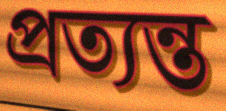
প্রত্যন্ত